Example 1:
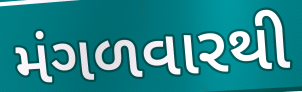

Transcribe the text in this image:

મંગળવારથી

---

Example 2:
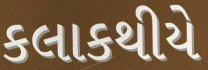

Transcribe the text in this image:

કલાકથીયે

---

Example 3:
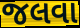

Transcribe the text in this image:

જલવા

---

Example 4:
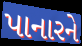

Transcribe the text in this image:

પાનારને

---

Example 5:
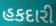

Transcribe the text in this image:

હકદારી